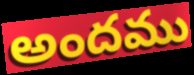
అందము